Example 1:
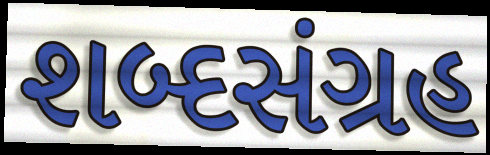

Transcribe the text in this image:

શબ્દસંગ્રહ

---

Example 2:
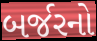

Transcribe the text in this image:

બર્જરનો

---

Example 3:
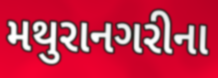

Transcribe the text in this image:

મથુરાનગરીના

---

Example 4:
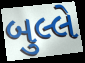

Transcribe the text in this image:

બુલ્લે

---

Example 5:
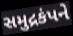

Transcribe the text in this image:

સમુદ્રકંપને